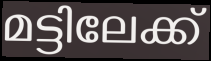
മട്ടിലേക്ക്